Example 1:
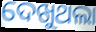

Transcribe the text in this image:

ଦେଖୁଥଲା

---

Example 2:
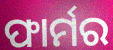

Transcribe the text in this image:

ଫାର୍ମର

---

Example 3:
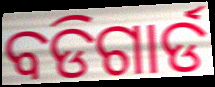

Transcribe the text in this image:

ବଡିଗାର୍ଡ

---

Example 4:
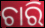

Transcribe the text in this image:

ଚାରି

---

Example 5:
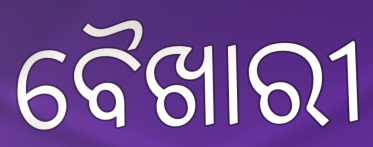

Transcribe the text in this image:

ବୈଖାରୀ